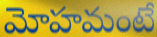
మోహమంటే